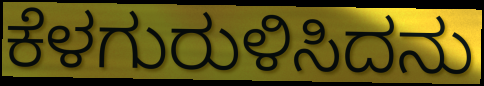
ಕೆಳಗುರುಳಿಸಿದನು